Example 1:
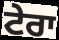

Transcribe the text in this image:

ਟੇਰਾ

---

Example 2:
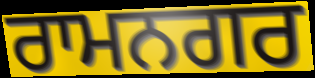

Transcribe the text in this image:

ਰਾਮਨਗਰ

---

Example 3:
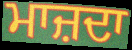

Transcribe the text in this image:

ਮਾਜ਼ਦਾ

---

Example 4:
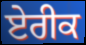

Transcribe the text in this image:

ਏਰੀਕ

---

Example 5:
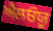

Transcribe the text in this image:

ਐਲਓਯੂ